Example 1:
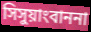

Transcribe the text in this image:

সিসুয়াংবাননা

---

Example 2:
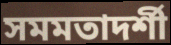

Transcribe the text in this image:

সমমতাদর্শী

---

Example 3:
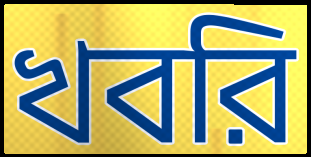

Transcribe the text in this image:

খবরি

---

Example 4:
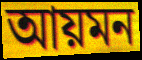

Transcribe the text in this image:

আয়মন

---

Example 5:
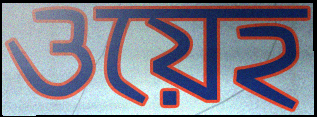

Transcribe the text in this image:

ওয়েহ